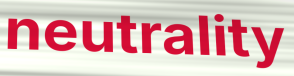
neutrality